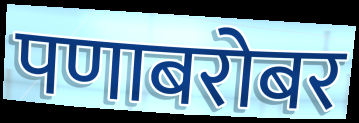
पणाबरोबर